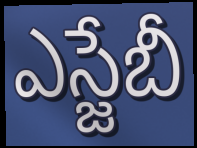
ఎస్జేబీ